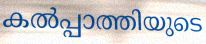
കൽപ്പാത്തിയുടെ